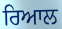
ਰਿਆਲ